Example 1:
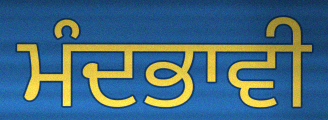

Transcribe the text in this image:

ਮੰਦਭਾਵੀ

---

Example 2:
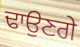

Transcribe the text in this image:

ਢਾਉਣਗੇ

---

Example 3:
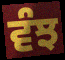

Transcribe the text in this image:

ਵੰਝ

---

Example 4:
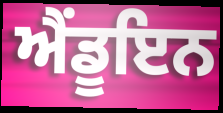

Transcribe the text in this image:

ਐਂਡੂਇਨ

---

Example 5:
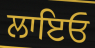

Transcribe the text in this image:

ਲਾਇਓ